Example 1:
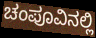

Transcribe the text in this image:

ಚಂಪೂವಿನಲ್ಲಿ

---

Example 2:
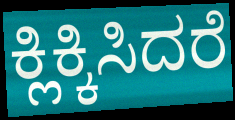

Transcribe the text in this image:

ಕ್ಲಿಕ್ಕಿಸಿದರೆ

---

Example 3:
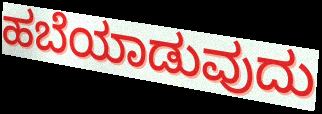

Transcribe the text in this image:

ಹಬೆಯಾಡುವುದು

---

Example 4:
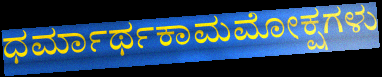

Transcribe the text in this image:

ಧರ್ಮಾರ್ಥಕಾಮಮೋಕ್ಷಗಳು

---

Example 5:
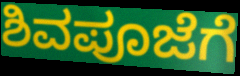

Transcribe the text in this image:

ಶಿವಪೂಜೆಗೆ